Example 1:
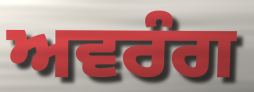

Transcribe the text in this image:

ਅਵਰੰਗ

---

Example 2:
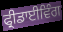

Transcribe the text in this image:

ਫ੍ਰੀਡਾਈਵਿੰਗ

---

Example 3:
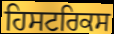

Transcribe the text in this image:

ਹਿਸਟਰਿਕਸ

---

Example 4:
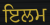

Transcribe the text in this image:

ਇਲਮ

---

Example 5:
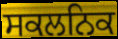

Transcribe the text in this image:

ਸਕਲਨਿਕ